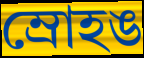
ম্রোহঙ